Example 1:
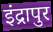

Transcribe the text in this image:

इंद्रापुर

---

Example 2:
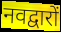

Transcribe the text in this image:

नवद्वारों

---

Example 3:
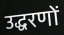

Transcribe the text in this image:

उद्धरणों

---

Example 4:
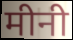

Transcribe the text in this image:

मीनी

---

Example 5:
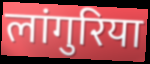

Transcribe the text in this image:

लांगुरिया